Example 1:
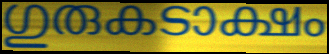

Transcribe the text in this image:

ഗുരുകടാക്ഷം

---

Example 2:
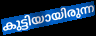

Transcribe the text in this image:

കുട്ടിയായിരുന്ന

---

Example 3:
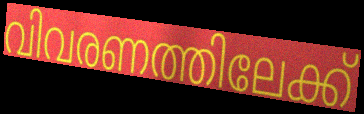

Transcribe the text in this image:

വിവരണത്തിലേക്ക്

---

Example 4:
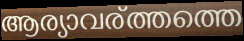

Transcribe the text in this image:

ആര്യാവര്ത്തത്തെ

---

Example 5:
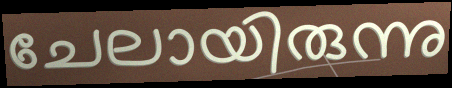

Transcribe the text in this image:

ചേലായിരുന്നു